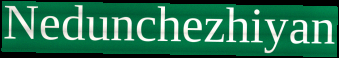
Nedunchezhiyan